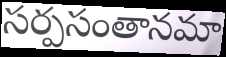
సర్పసంతానమా